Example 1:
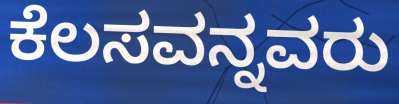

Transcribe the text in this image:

ಕೆಲಸವನ್ನವರು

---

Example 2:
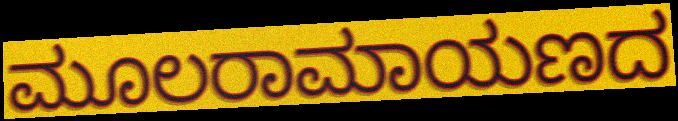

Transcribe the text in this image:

ಮೂಲರಾಮಾಯಣದ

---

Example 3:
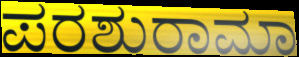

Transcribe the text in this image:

ಪರಶುರಾಮಾ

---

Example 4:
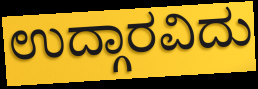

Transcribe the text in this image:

ಉದ್ಗಾರವಿದು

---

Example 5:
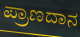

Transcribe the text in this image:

ಪ್ರಾಣದಾನ